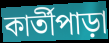
কার্তীপাড়া